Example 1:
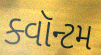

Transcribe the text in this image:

ક્વૉન્ટમ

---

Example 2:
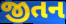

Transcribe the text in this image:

જીતન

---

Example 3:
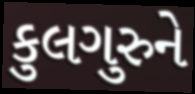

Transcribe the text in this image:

કુલગુરુને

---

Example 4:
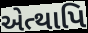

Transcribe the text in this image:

એત્થાપિ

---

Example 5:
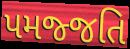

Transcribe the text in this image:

પમજ્જતિ